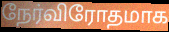
நேர்விரோதமாக